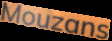
Mouzans